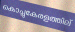
കൊച്ചുകേരളത്തില്